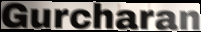
Gurcharan